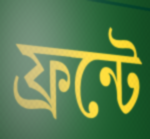
ফ্রন্টে